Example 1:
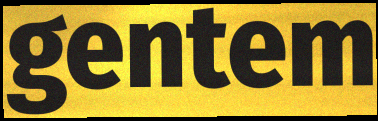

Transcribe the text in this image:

gentem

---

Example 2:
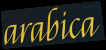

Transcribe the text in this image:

arabica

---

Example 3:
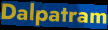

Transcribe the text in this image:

Dalpatram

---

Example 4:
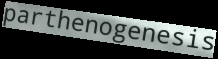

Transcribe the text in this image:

parthenogenesis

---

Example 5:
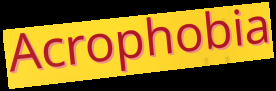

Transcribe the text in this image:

Acrophobia